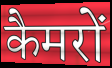
कैमरों